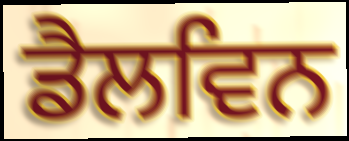
ਡੈਲਵਿਨ